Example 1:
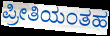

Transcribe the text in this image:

ಪ್ರೀತಿಯಂತಹ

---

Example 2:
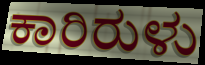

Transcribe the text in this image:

ಕಾರಿರುಳು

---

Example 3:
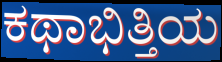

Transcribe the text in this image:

ಕಥಾಭಿತ್ತಿಯ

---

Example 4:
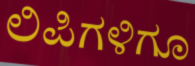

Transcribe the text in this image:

ಲಿಪಿಗಳಿಗೂ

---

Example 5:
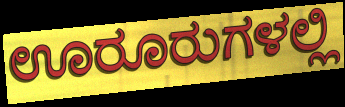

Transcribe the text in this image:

ಊರೂರುಗಳಲ್ಲಿ